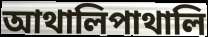
আথালিপাথালি